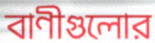
বাণীগুলোর